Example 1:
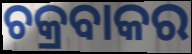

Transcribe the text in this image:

ଚକ୍ରବାକର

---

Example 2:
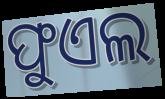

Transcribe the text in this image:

ଫୁଏଲ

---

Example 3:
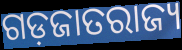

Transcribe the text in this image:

ଗଡ଼ଜାତରାଜ୍ୟ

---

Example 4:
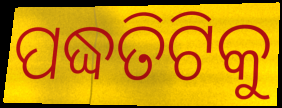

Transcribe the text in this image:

ପଦ୍ଧତିଟିକୁ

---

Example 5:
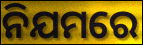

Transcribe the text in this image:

ନିଯମରେ